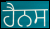
ਹੈਨਸ